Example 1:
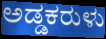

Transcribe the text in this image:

ಅಡ್ಡಕರುಳು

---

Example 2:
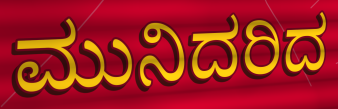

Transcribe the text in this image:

ಮುನಿದರಿದ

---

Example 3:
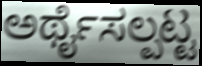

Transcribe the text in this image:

ಅರ್ಥೈಸಲ್ಪಟ್ಟ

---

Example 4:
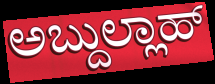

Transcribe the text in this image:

ಅಬ್ದುಲ್ಲಾಹ್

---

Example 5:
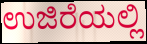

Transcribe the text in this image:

ಉಜಿರೆಯಲ್ಲಿ